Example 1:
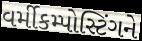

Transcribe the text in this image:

વર્મીકમ્પોસ્ટિંગને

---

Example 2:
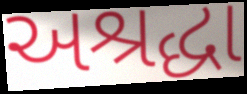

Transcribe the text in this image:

અશ્રદ્ધા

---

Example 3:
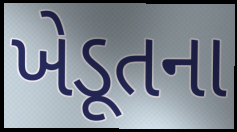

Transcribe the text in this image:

ખેડૂતના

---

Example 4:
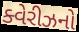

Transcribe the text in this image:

ક્વેરીઝનો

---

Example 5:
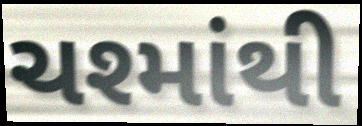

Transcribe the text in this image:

ચશ્માંથી